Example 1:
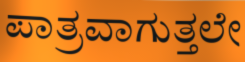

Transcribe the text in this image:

ಪಾತ್ರವಾಗುತ್ತಲೇ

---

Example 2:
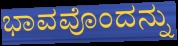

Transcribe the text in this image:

ಭಾವವೊಂದನ್ನು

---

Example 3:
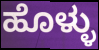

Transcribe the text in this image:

ಹೊಳ್ಳು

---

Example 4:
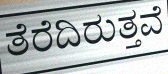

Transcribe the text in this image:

ತೆರೆದಿರುತ್ತವೆ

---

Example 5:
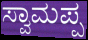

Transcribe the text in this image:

ಸ್ವಾಮಪ್ಪ